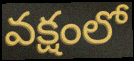
వక్షంలో